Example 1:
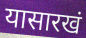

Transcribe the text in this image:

यासारखं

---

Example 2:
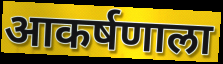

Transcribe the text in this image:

आकर्षणाला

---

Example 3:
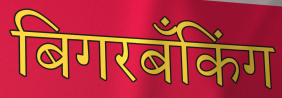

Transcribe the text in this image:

बिगरबँकिंग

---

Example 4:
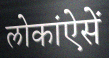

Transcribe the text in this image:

लोकांऐसें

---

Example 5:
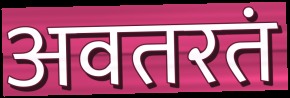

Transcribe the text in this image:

अवतरतं